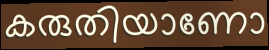
കരുതിയാണോ